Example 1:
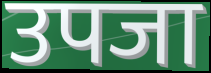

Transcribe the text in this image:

उपजा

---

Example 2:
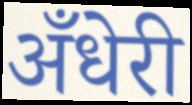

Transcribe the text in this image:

अँधेरी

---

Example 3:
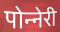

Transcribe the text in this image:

पोन्नेरी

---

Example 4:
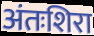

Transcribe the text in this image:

अंतःशिरा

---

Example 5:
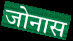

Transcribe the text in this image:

जोनास